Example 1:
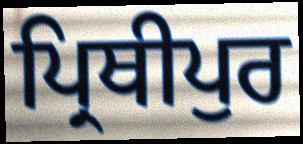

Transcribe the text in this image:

ਪ੍ਰਿਥੀਪੁਰ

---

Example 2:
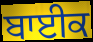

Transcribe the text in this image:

ਬਾਈਕ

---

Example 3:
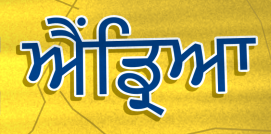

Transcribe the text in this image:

ਐਂਡ੍ਰਿਆ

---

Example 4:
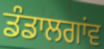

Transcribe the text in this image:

ਡੰਡਾਲਗਾਂਵ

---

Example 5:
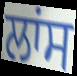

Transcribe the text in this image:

ਲਾਂਸ